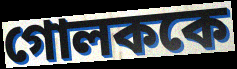
গোলককে